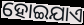
ହୋଇଯାଏ